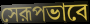
সেরূপভাবে